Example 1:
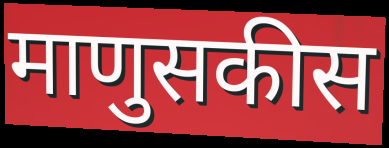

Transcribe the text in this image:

माणुसकीस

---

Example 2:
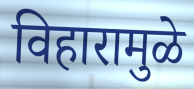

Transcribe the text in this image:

विहारामुळे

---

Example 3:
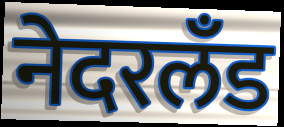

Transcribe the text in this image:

नेदरलँड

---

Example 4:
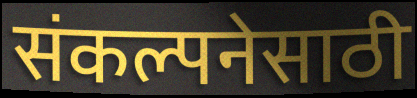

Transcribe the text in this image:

संकल्पनेसाठी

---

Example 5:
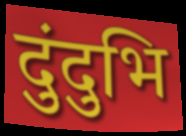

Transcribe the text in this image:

दुंदुभि